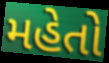
મહેતો